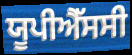
ਯੂਪੀਐੱਸਸੀ